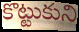
కొట్టుకుని